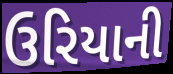
ઉરિયાની